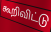
கூறிவிட்டு